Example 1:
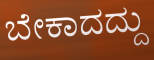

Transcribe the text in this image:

ಬೇಕಾದದ್ದು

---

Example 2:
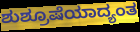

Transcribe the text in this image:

ಶುಶ್ರೂಷೆಯಾದ್ಯಂತ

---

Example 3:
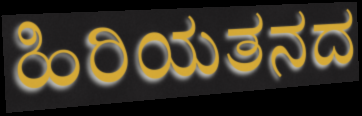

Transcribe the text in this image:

ಹಿರಿಯತನದ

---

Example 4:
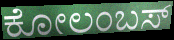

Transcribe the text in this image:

ಕೋಲಂಬಸ್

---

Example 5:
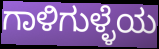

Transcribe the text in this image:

ಗಾಳಿಗುಳ್ಳೆಯ